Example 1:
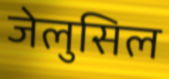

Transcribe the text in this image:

जेलुसिल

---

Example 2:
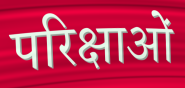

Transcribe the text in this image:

परिक्षाओं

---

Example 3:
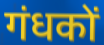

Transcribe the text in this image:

गंधकों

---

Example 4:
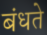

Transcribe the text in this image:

बंधते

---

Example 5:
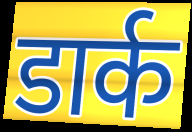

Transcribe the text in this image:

डार्क